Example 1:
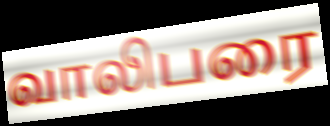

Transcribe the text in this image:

வாலிபரை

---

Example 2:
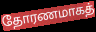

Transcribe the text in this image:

தோரணமாகத்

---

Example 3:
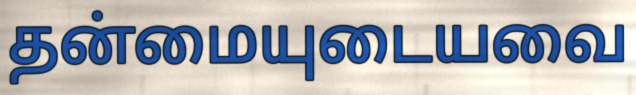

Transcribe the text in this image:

தன்மையுடையவை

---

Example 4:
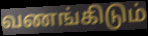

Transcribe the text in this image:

வணங்கிடும்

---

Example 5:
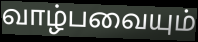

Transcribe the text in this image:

வாழ்பவையும்